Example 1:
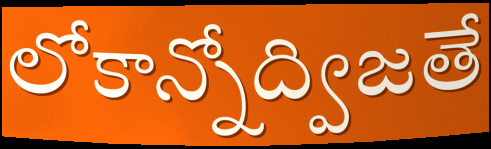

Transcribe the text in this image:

లోకాన్నోద్విజతే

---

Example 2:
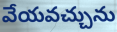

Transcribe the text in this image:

వేయవచ్చును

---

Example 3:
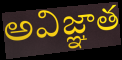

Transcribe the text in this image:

అవిజ్ఞాత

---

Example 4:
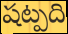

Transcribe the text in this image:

షట్పది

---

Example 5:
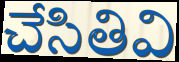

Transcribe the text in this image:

చేసితివి